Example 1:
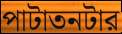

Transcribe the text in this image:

পাটাতনটার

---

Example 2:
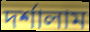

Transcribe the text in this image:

দর্শালাম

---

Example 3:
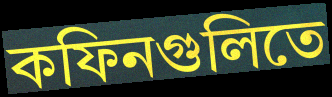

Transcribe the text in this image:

কফিনগুলিতে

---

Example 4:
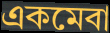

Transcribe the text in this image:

একমেবা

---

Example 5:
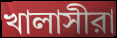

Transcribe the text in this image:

খালাসীরা